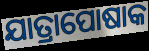
ଯାତ୍ରାପୋଷାକ